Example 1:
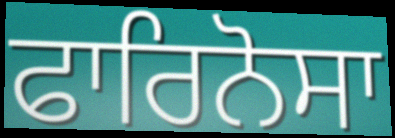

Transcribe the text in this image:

ਫਾਰਿਨੋਸਾ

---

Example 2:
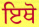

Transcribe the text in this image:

ਇਥੋ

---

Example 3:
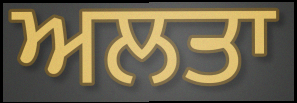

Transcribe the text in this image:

ਅਲਤਾ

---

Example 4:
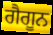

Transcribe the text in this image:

ਗੈਗੂਨ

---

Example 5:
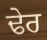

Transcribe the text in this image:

ਢੇਰ